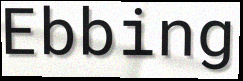
Ebbing